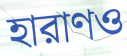
হারাণও